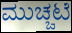
ಮುಚ್ಚಟೆ